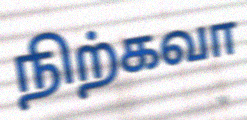
நிற்கவா